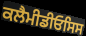
ਕਲੈਮੀਡੀਓਸਿਸ